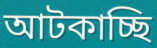
আটকাচ্ছি